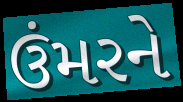
ઉંમરને